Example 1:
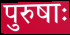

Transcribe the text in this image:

पुरुषाः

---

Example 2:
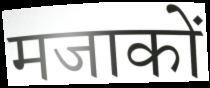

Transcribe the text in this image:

मजाकों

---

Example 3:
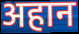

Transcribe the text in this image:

अहान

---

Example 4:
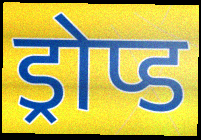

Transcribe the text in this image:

ड्रोप्ड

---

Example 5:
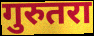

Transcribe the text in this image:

गुरुतरा